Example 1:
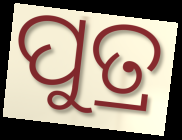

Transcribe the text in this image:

ପୁତ୍ର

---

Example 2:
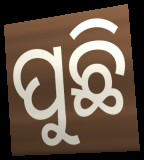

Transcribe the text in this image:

ପୁଛି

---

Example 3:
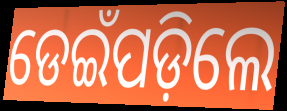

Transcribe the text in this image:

ଡେଇଁପଡ଼ିଲେ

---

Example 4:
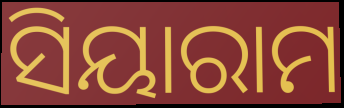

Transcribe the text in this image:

ସିୟାରାମ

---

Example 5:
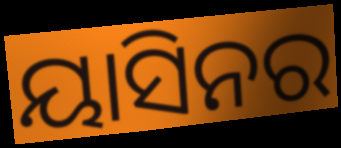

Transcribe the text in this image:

ୟାସିନର